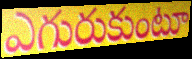
ఎగురుకుంటూ